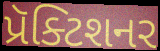
પ્રૅક્ટિશનર